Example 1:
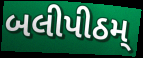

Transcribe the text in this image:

બલીપીઠમ્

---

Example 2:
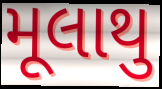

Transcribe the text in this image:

મૂલાથુ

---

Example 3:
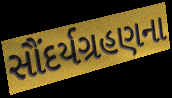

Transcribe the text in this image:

સૌંદર્યગ્રહણના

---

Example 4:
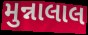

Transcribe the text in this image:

મુન્નાલાલ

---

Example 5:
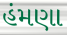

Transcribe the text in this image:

હંમણા